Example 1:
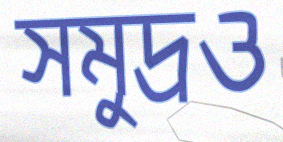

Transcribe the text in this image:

সমুদ্রও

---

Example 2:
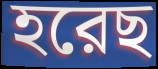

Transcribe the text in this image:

হরেছ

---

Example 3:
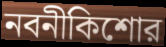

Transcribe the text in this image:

নবনীকিশোর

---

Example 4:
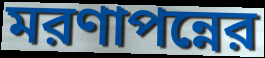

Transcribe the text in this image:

মরণাপন্নের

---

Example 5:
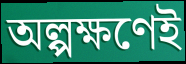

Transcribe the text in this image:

অল্পক্ষণেই